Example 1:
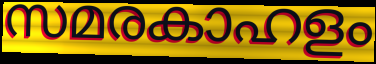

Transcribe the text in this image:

സമരകാഹളം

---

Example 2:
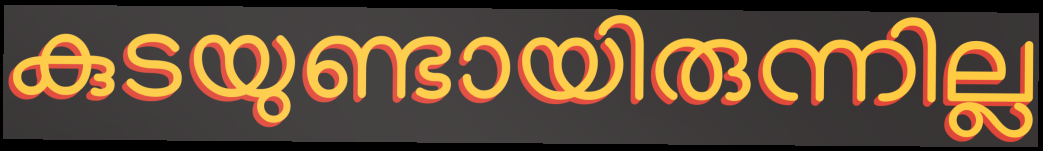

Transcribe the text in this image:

കുടയുണ്ടായിരുന്നില്ല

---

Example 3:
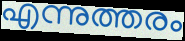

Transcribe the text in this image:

എന്നുത്തരം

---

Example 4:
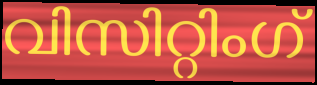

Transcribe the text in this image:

വിസിറ്റിംഗ്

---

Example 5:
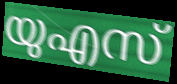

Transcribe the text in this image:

യുഎസ്